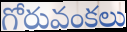
గోరువంకలు